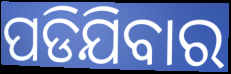
ପଡିଯିବାର